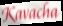
Kavacha